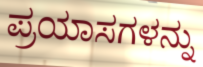
ಪ್ರಯಾಸಗಳನ್ನು